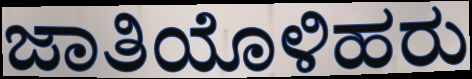
ಜಾತಿಯೊಳಿಹರು